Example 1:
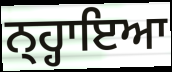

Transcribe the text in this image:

ਨ੍ਹ੍ਹਾਇਆ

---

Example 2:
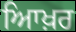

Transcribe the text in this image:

ਆਿਖ਼ਰ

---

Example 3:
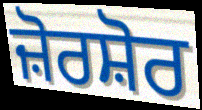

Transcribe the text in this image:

ਜ਼ੋਰਸ਼ੋਰ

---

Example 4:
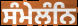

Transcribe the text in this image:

ਸੰਮੇਲੰਨਿ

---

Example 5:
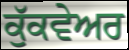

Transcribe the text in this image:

ਕੁੱਕਵੇਅਰ